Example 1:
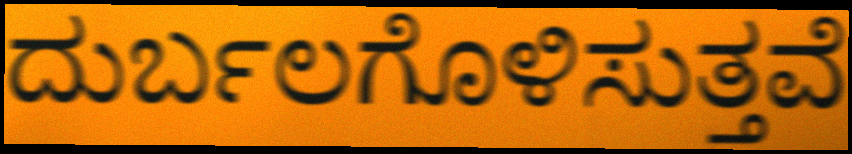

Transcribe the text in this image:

ದುರ್ಬಲಗೊಳಿಸುತ್ತವೆ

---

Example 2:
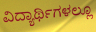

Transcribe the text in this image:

ವಿದ್ಯಾರ್ಥಿಗಳಲ್ಲೂ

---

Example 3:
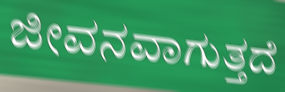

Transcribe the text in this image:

ಜೀವನವಾಗುತ್ತದೆ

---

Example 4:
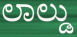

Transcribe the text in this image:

ಲಾಲ್ಡು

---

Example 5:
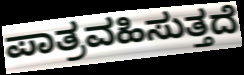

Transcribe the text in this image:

ಪಾತ್ರವಹಿಸುತ್ತದೆ